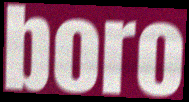
boro